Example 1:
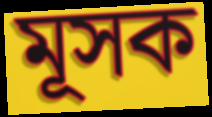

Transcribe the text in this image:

মূসক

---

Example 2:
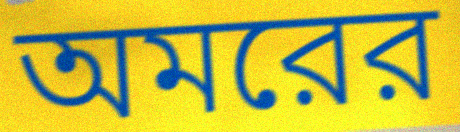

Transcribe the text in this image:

অমরের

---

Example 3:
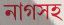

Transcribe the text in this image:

নাগসহ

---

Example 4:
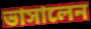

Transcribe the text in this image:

ভাসালেন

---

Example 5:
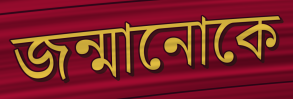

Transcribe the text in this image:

জন্মানোকে